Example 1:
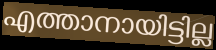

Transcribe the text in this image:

എത്താനായിട്ടില്ല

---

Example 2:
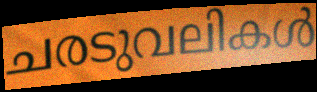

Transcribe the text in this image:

ചരടുവലികൾ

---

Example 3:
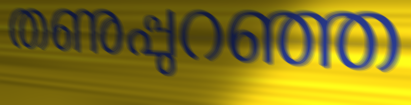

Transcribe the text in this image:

തണുപ്പുറഞ്ഞ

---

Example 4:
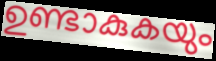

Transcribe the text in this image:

ഉണ്ടാകുകയും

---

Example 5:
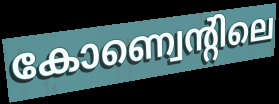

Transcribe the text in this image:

കോണ്വെന്റിലെ